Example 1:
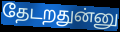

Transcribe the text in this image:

தேடறதுன்னு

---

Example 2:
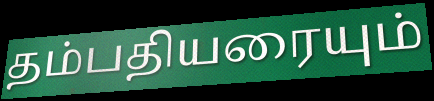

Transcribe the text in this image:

தம்பதியரையும்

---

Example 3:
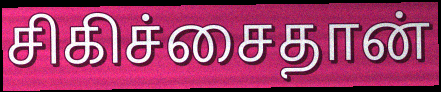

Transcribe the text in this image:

சிகிச்சைதான்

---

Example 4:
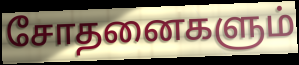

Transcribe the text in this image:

சோதனைகளும்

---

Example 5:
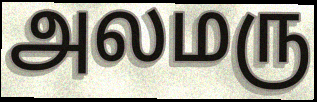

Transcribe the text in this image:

அலமரு